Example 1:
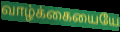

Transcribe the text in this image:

வாழ்க்கையையே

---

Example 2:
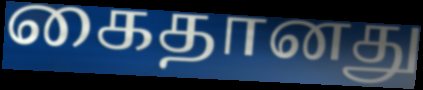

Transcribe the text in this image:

கைதானது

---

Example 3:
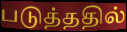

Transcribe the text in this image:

படுத்ததில்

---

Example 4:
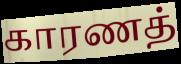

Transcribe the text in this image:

காரணத்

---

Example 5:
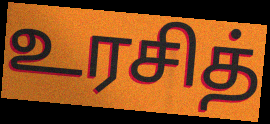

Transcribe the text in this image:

உரசித்